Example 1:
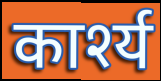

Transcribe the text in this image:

कार्श्य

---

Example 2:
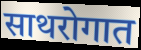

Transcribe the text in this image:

साथरोगात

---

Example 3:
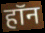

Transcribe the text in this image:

हॉन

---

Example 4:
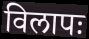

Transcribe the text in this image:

विलापः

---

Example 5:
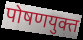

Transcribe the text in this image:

पोषणयुक्त